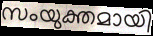
സംയുക്തമായി